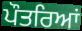
ਪੌਤਰਿਆਂ